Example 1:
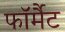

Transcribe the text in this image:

फॉर्मैट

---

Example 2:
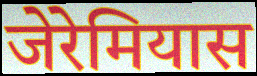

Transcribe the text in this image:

जेरेमियास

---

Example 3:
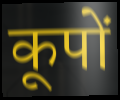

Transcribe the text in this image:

कूपों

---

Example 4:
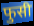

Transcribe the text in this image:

फुसी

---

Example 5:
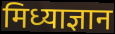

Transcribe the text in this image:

मिध्याज्ञान